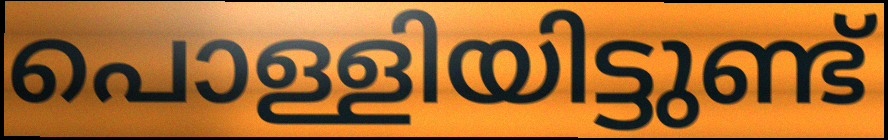
പൊള്ളിയിട്ടുണ്ട്